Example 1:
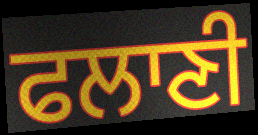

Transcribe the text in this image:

ਫਲਾਣੀ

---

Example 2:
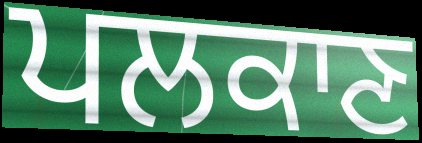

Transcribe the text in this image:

ਪਲਕਾਣ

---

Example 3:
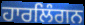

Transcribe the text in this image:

ਹਾਰਲਿੰਗਨ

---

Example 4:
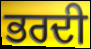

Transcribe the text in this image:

ਭਰਦੀ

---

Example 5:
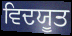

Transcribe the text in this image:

ਵਿਦਯੂਤ